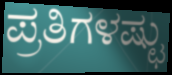
ಪ್ರತಿಗಳಷ್ಟು